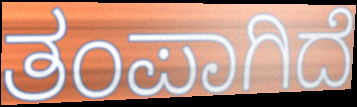
ತಂಪಾಗಿದೆ